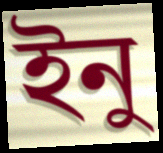
ইনু